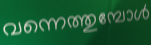
വന്നെത്തുമ്പോൾ